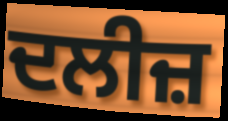
ਦਲੀਜ਼